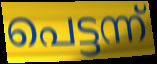
പെട്ടന്ന്